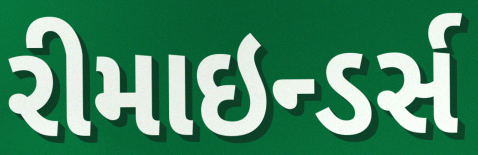
રીમાઇન્ડર્સ